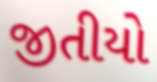
જીતીયો